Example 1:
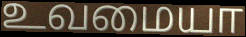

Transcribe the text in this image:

உவமையா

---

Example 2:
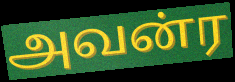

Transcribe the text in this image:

அவன்ர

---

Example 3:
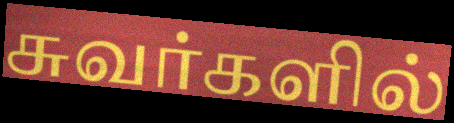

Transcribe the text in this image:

சுவர்களில்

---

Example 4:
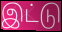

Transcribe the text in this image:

இட்டு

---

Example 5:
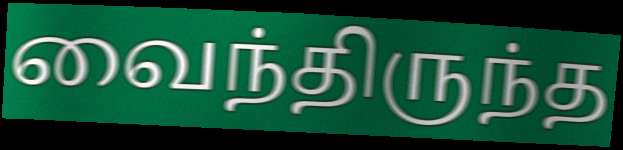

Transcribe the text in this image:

வைந்திருந்த